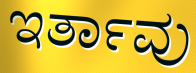
ಇರ್ತಾವು